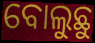
ବୋଲୁଛୁ